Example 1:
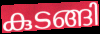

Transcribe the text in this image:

കുടങ്ങി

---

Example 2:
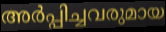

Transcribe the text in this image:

അർപ്പിച്ചവരുമായ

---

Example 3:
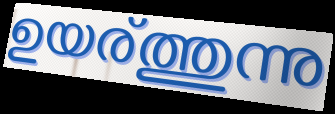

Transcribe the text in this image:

ഉയര്ത്തുന്നു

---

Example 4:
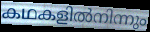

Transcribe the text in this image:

കഥകളിൽനിന്നും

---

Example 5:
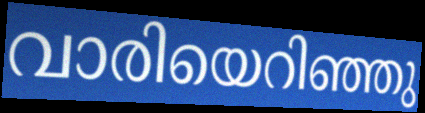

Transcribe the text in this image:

വാരിയെറിഞ്ഞു